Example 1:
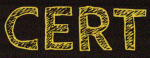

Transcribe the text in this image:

CERT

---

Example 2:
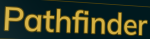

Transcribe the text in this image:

Pathfinder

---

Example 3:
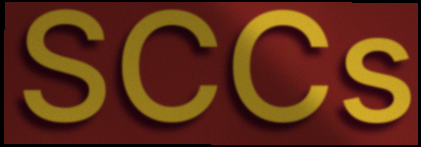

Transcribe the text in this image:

SCCs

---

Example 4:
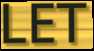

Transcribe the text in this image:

LET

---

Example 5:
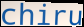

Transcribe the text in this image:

chiru